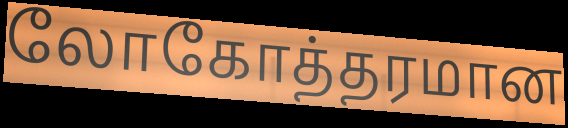
லோகோத்தரமான